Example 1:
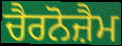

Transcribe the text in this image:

ਚੈਰਨੋਜ਼ੈਮ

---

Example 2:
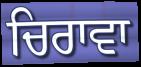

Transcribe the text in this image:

ਚਿਰਾਵਾ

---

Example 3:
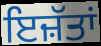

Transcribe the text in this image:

ਇਜ਼ੱਤਾਂ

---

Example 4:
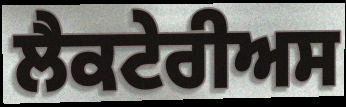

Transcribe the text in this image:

ਲੈਕਟੇਰੀਅਸ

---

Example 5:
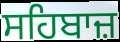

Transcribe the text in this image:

ਸਹਿਬਾਜ਼